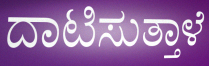
ದಾಟಿಸುತ್ತಾಳೆ